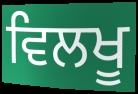
ਵਿਲਖੂ